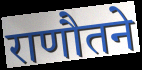
राणौतने